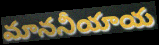
మాననీయాయ